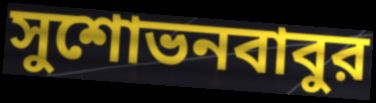
সুশোভনবাবুর